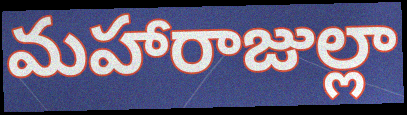
మహారాజుల్లా